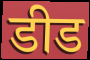
डीड